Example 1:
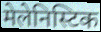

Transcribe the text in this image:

मेलेनिस्टिक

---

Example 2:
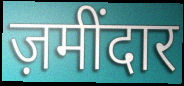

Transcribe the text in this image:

ज़मींदार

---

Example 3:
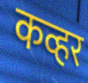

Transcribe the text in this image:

कव्हर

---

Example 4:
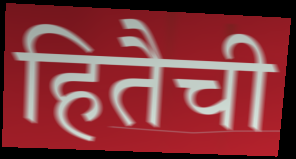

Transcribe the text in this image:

हितैची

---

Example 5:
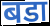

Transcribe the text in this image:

बडा